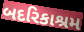
બદરિકાશ્રમ